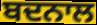
ਬਦਨਾਲ